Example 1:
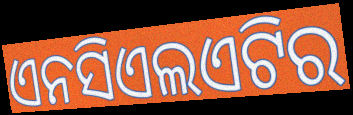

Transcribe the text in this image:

ଏନସିଏଲଏଟିର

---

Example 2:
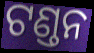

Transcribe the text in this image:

ଟଣ୍ଡନ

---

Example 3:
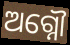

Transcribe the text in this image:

ଅଗ୍ନୌ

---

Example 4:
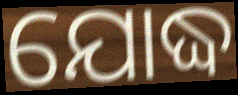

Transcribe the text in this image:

ଯୋଦ୍ଧ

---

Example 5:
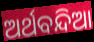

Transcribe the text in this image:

ଅର୍ଥବନ୍ଦିଆ